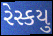
રેસ્કયુ